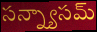
సన్న్యాసమ్